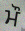
ਮੌ